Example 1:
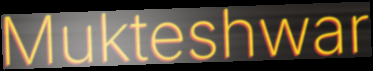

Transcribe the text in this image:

Mukteshwar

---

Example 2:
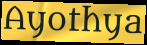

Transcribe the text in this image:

Ayothya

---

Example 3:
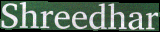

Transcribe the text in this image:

Shreedhar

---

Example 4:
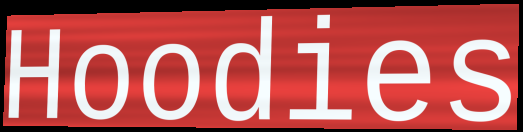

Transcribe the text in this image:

Hoodies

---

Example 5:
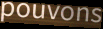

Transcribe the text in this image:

pouvons